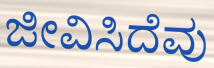
ಜೀವಿಸಿದೆವು